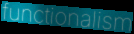
functionalism